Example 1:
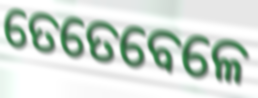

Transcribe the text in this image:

ତେତେବେଳେ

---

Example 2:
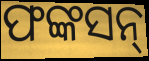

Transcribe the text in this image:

ଫଙ୍କସନ୍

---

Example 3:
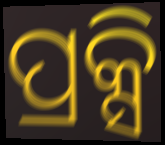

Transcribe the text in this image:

ପ୍ରକ୍ସି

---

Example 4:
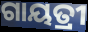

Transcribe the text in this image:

ଗାୟତ୍ରୀ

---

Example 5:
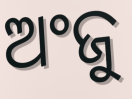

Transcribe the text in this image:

ଅଂଜୁ